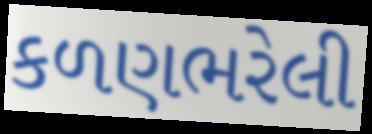
કળણભરેલી